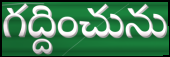
గద్దించును